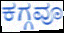
ಕಗ್ಗವೂ